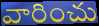
వారించు